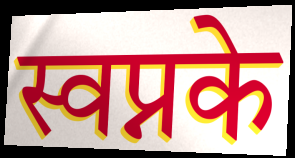
स्वप्नके